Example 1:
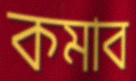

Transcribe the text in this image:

কমাব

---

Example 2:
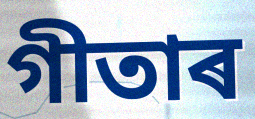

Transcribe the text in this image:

গীতাৰ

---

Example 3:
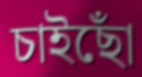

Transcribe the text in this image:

চাইছোঁ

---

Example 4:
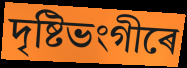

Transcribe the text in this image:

দৃষ্টিভংগীৰে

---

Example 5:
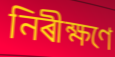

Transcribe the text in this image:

নিৰীক্ষণে